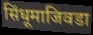
सिंधूमाजिवडा